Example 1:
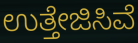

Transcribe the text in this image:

ಉತ್ತೇಜಿಸಿವೆ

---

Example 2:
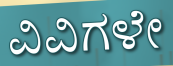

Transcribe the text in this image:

ವಿವಿಗಳೇ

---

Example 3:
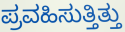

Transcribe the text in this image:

ಪ್ರವಹಿಸುತ್ತಿತ್ತು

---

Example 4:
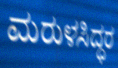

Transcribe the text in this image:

ಮರುಳಸಿದ್ಧರ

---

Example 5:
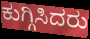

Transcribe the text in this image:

ಕುಗ್ಗಿಸಿದರು